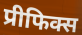
प्रीफिक्स